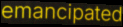
emancipated